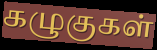
கழுகுகள்